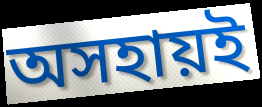
অসহায়ই